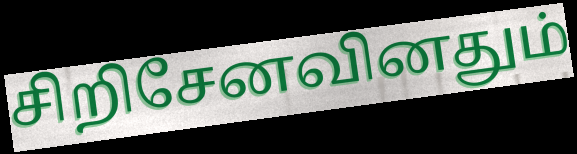
சிறிசேனவினதும்